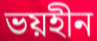
ভয়হীন